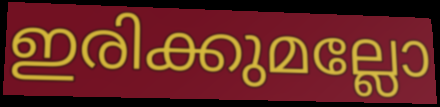
ഇരിക്കുമല്ലോ